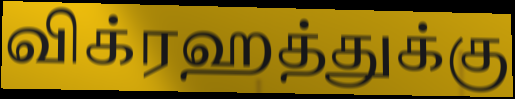
விக்ரஹத்துக்கு